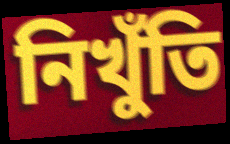
নিখুঁতি